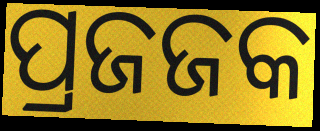
ପ୍ରଜଜକ